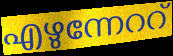
എഴുന്നേററ്